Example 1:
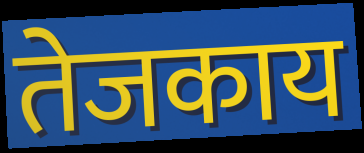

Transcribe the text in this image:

तेजकाय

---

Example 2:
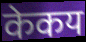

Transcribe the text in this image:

केकय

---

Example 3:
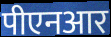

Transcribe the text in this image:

पीएनआर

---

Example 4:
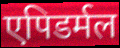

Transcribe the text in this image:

एपिडर्मल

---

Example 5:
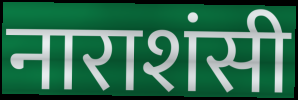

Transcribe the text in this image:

नाराशंसी